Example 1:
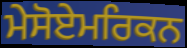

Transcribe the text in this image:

ਮੇਸੋਏਮਰਿਕਨ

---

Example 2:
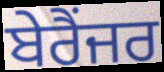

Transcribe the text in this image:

ਬੇਰੈਂਜਰ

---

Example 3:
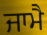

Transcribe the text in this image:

ਜਾਮੈ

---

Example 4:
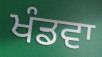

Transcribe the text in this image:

ਖੰਡਵਾ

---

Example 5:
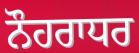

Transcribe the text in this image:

ਨੌਹਰਾਧਰ